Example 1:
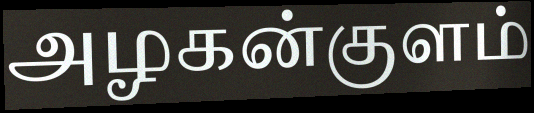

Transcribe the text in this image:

அழகன்குளம்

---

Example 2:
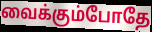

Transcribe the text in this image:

வைக்கும்போதே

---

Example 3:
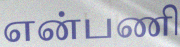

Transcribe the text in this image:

என்பணி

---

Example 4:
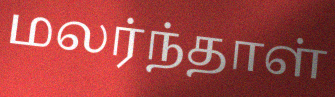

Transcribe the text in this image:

மலர்ந்தாள்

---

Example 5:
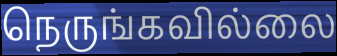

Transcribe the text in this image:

நெருங்கவில்லை